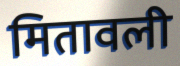
मितावली